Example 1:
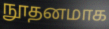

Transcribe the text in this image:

நூதனமாக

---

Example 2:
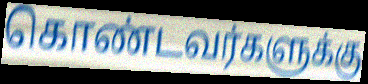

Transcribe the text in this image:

கொண்டவர்களுக்கு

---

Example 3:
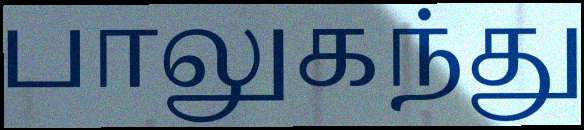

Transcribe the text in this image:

பாலுகந்து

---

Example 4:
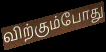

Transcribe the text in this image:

விற்கும்போது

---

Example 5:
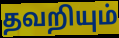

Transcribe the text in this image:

தவறியும்